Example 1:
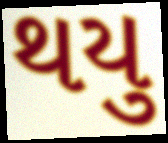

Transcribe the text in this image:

થયુ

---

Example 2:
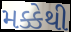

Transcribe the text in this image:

મક્કેથી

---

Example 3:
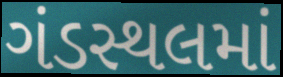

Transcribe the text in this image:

ગંડસ્થલમાં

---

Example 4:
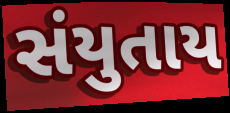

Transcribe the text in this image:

સંયુતાય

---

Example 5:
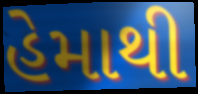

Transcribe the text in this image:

હેમાથી